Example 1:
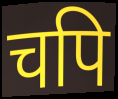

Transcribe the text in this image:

चपि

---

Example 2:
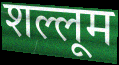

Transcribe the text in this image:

शल्लूम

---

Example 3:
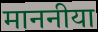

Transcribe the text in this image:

माननीया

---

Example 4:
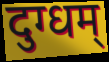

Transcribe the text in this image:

दुग्धम्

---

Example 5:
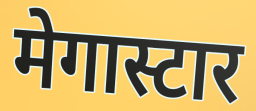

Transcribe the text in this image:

मेगास्टार